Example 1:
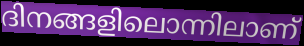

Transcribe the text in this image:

ദിനങ്ങളിലൊന്നിലാണ്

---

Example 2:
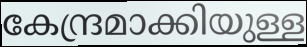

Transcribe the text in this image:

കേന്ദ്രമാക്കിയുള്ള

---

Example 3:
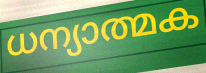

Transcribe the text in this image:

ധന്യാത്മക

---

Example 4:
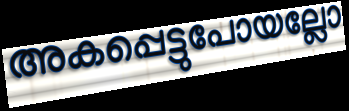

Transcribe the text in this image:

അകപ്പെട്ടുപോയല്ലോ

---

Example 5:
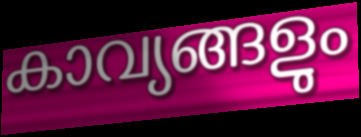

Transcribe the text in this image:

കാവ്യങ്ങളും